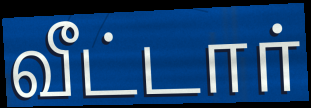
வீட்டார்